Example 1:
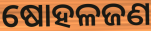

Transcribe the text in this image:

ଷୋହଳଜଣ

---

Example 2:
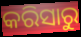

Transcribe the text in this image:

କରିସାରୁ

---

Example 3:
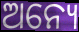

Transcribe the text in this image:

ଅନ୍ୟେ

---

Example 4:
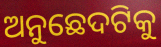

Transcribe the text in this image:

ଅନୁଛେଦଟିକୁ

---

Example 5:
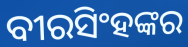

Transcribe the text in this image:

ବୀରସିଂହଙ୍କର